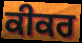
ਕੀਕਰ